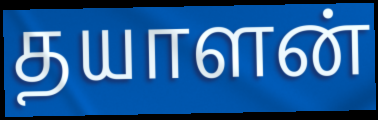
தயாளன்